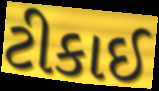
ટીકાઈ